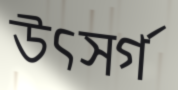
উৎসর্গ